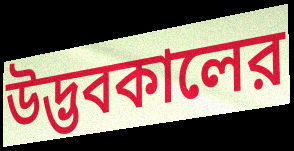
উদ্ভবকালের